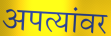
अपत्यांवर